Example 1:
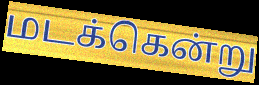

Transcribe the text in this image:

மடக்கென்று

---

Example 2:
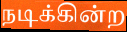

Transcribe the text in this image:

நடிக்கின்ற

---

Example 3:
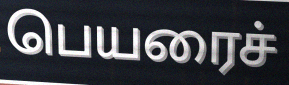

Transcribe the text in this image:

பெயரைச்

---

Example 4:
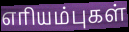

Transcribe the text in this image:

எரியம்புகள்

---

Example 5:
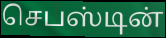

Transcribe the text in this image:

செபஸ்டின்